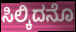
ಸಿಲ್ಕಿದನೊ